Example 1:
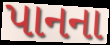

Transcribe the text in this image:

પાનના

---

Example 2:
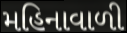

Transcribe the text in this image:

મહિનાવાળી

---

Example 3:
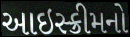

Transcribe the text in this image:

આઇસ્ક્રીમનો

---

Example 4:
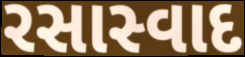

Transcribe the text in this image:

રસાસ્વાદ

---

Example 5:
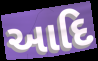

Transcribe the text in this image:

આદિ